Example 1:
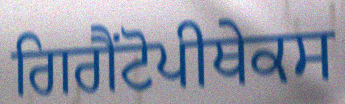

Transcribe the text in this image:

ਗਿਗੈਂਟੋਪੀਥੇਕਸ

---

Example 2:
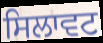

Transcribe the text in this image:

ਸਿਲਾਵਟ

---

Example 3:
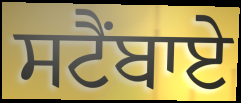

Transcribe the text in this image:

ਸਟੈਂਬਾਏ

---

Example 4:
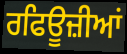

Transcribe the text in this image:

ਰਫਿਊਜ਼ੀਆਂ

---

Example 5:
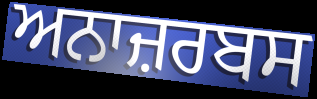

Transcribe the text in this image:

ਅਨਾਜ਼ਰਬਸ